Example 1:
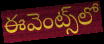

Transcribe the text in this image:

ఈవెంట్స్‌లో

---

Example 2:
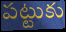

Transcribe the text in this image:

పట్టుకు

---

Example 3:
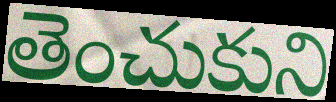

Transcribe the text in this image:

తెంచుకుని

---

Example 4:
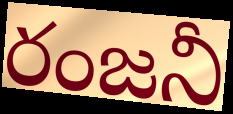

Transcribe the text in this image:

రంజనీ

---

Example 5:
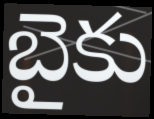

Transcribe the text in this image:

బైకు